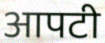
आपटी